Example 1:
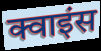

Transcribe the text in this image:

क्वाइंस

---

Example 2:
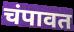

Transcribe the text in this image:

चंपावत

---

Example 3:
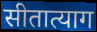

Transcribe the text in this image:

सीतात्याग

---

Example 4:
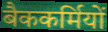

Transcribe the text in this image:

बैककर्मियों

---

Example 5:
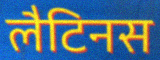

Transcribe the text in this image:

लैटिनस